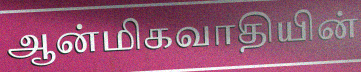
ஆன்மிகவாதியின்